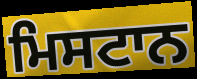
ਮਿਸਟਾਨ